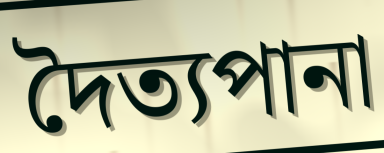
দৈত্যপানা